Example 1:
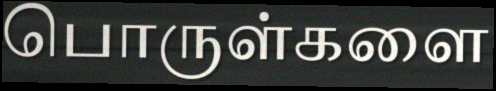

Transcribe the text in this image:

பொருள்களை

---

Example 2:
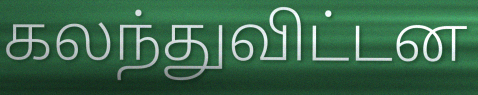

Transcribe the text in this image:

கலந்துவிட்டன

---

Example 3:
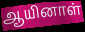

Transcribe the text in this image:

ஆயினாள்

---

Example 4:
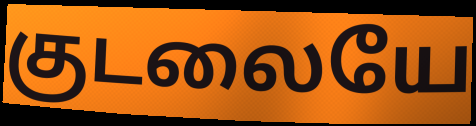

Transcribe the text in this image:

குடலையே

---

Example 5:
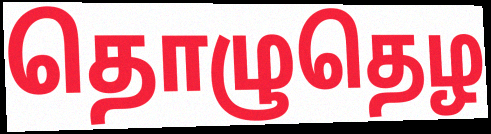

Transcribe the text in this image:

தொழுதெழ